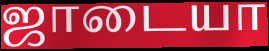
ஜாடையா